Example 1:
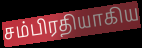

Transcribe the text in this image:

சம்பிரதியாகிய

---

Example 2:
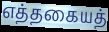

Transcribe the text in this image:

எத்தகையத்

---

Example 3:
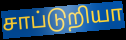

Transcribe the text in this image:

சாப்டுறியா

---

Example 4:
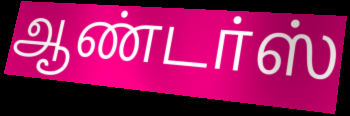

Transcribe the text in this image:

ஆண்டர்ஸ்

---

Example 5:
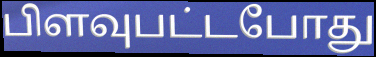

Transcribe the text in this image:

பிளவுபட்டபோது